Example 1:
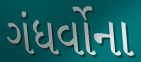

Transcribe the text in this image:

ગંધર્વોના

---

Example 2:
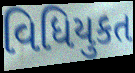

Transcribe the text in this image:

વિધિયુકત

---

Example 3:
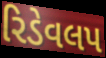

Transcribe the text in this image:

રિડેવલપ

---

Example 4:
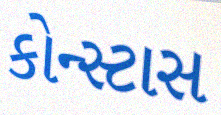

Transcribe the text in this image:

કોન્સ્ટાસ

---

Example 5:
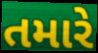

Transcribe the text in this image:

તમારે